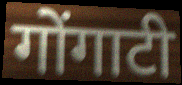
गोंगाटी